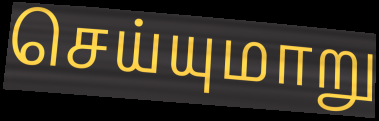
செய்யுமாறு